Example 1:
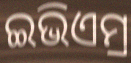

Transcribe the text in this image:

ଇଭିଏମ୍ର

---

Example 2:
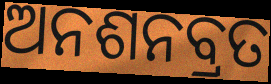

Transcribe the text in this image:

ଅନଶନବ୍ରତ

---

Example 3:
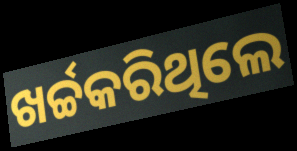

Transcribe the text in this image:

ଖର୍ଚ୍ଚକରିଥିଲେ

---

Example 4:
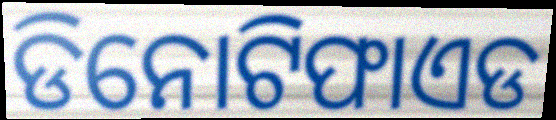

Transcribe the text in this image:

ଡିନୋଟିଫାଏଡ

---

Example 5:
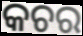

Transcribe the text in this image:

କଚର